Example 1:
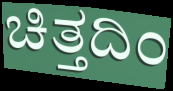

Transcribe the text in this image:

ಚಿತ್ತದಿಂ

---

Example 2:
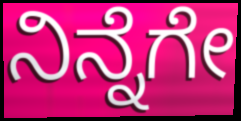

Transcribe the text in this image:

ನಿನ್ನೆಗೇ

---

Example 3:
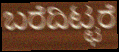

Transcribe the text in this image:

ಬರೆದಿಟ್ಟರೆ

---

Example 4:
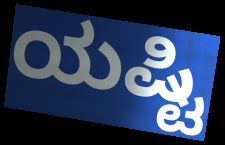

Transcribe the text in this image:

ಯಷ್ಟಿ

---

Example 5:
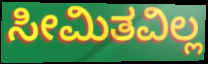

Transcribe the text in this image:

ಸೀಮಿತವಿಲ್ಲ